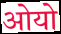
ओयो